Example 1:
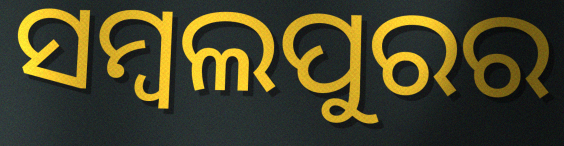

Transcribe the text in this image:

ସମ୍ୱଲପୁରର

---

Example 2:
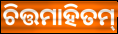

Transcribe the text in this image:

ଚିତ୍ତମାହିତମ୍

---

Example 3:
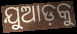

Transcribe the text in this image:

ଯୁଆଡ଼କୁ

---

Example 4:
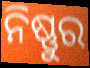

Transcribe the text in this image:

ନିଷ୍ଣୁର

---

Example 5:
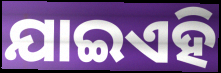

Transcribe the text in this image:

ଯାଇଏହି